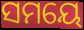
ସମୟେ